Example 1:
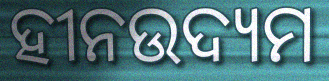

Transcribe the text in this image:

ହୀନଉଦ୍ୟମ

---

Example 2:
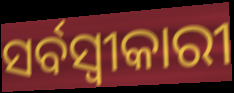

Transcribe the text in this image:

ସର୍ବସ୍ଵୀକାରୀ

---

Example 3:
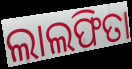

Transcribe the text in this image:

ଲାଲଫିତା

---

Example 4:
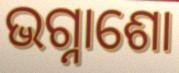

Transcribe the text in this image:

ଭଗ୍ନାଶୋ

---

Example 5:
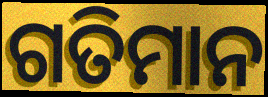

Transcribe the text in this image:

ଗତିମାନ